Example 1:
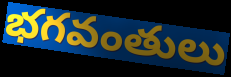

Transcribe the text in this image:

భగవంతులు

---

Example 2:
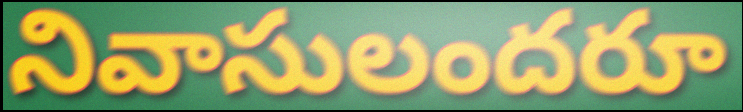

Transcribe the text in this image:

నివాసులందరూ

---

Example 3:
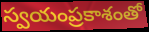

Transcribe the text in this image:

స్వయంప్రకాశంతో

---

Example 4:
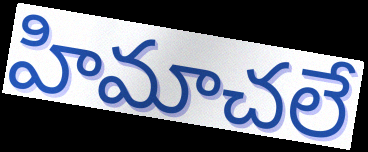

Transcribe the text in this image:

హిమాచలే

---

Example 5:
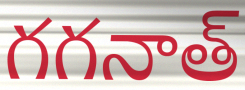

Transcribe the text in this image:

గగనాత్